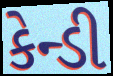
કેન્ડી